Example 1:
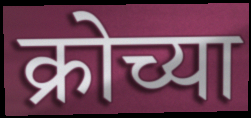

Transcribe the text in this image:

क्रोच्या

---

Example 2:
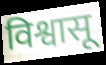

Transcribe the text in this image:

विश्वासू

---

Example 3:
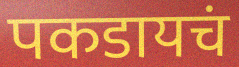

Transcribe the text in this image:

पकडायचं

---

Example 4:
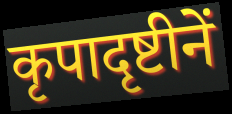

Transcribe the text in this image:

कृपादृष्टीनें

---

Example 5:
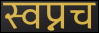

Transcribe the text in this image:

स्वप्नच